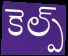
కెల్ప్